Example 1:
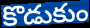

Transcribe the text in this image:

కొడుకుం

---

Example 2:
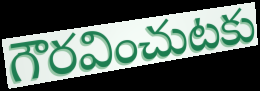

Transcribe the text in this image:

గౌరవించుటకు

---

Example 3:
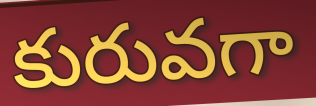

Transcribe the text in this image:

కురువగా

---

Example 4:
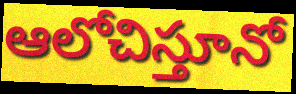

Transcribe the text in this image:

ఆలోచిస్తూనో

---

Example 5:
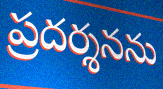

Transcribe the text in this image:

ప్రదర్శనను